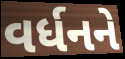
વર્ધનને